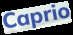
Caprio